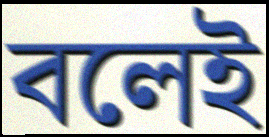
বলেই